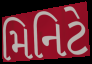
મિનિટે